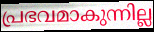
പ്രഭവമാകുന്നില്ല